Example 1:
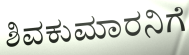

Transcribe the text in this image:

ಶಿವಕುಮಾರನಿಗೆ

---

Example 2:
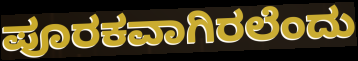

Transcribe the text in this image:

ಪೂರಕವಾಗಿರಲೆಂದು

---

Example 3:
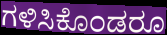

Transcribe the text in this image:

ಗಳಿಸಿಕೊಂಡರೂ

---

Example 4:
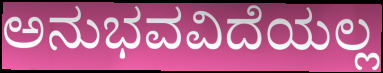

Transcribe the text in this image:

ಅನುಭವವಿದೆಯಲ್ಲ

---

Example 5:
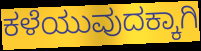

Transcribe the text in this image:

ಕಳೆಯುವುದಕ್ಕಾಗಿ